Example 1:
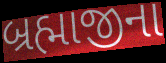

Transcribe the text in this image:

બ્રહ્માજીના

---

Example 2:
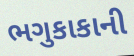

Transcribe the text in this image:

ભગુકાકાની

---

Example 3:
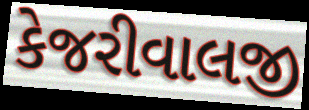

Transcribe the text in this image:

કેજરીવાલજી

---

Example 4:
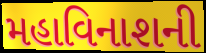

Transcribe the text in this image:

મહાવિનાશની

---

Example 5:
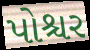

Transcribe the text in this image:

પોશ્ચર